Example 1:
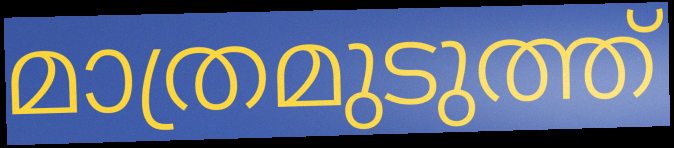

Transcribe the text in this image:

മാത്രമുടുത്ത്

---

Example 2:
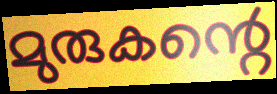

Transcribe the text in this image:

മുരുകന്റെ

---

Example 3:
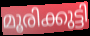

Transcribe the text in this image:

മൂരിക്കുട്ടി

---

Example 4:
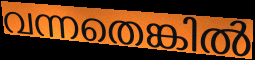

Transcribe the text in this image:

വന്നതെങ്കിൽ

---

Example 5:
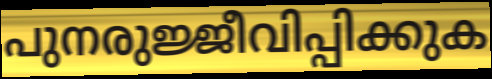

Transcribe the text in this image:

പുനരുജ്ജീവിപ്പിക്കുക